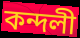
কন্দলী